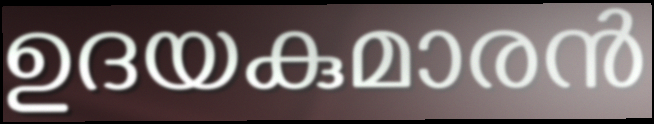
ഉദയകുമാരൻ